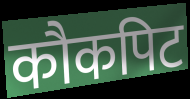
कौकपिट